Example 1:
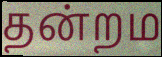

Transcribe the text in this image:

தன்றம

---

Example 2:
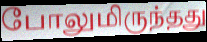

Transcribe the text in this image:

போலுமிருந்தது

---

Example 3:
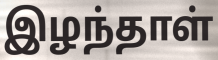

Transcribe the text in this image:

இழந்தாள்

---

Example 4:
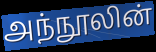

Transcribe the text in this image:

அந்நூலின்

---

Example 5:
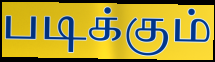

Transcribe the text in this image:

படிக்கும்